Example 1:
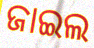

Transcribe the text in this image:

ଜାଇଲ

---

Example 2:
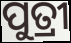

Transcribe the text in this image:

ପୁତ୍ରୀ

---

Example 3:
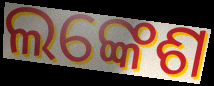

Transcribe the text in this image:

ଲଙ୍କେଶ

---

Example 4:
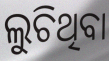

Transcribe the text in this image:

ଲୁଚିଥିବା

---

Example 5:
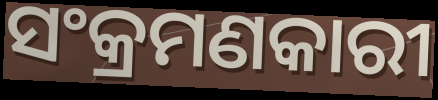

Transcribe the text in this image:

ସଂକ୍ରମଣକାରୀ